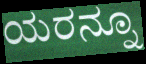
ಯರನ್ನೂ